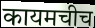
कायमचीच